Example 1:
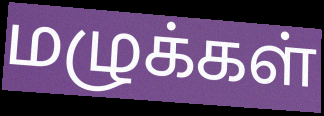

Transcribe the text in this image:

மழுக்கள்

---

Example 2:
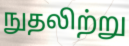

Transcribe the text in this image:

நுதலிற்று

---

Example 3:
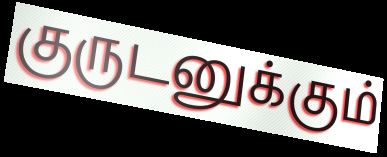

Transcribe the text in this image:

குருடனுக்கும்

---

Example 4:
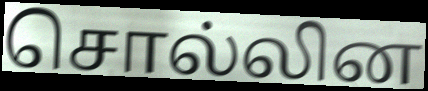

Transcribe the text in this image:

சொல்லின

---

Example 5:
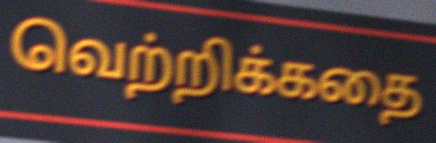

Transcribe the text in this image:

வெற்றிக்கதை